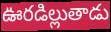
ఊరడిల్లుతాడు